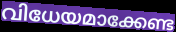
വിധേയമാക്കേണ്ട